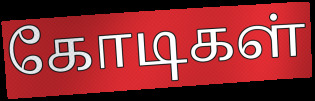
கோடிகள்